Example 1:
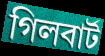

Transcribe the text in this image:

গিলবাৰ্ট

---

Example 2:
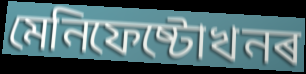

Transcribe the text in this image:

মেনিফেষ্টোখনৰ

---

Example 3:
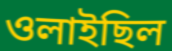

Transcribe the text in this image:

ওলাইছিল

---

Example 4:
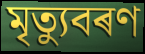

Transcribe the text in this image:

মৃত্যুবৰণ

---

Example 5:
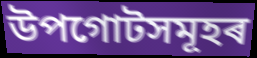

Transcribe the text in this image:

উপগোটসমূহৰ